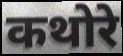
कथोरे